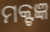
ମକ୍ଟଜ୍ଞ